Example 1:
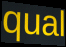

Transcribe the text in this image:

qual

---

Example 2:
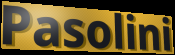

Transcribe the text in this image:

Pasolini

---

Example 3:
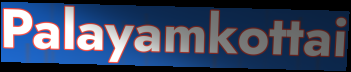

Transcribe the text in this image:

Palayamkottai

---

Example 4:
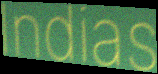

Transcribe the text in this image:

Indias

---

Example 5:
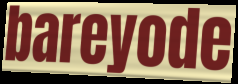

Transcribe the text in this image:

bareyode